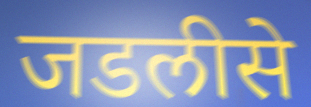
जडलीसे